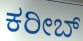
ಕರೀಬ್